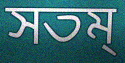
সতম্